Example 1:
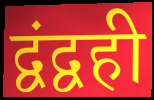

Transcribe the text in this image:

द्वंद्वही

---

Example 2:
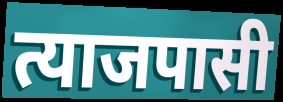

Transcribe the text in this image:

त्याजपासी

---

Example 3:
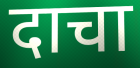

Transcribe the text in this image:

दाचा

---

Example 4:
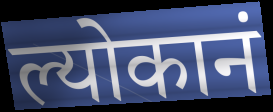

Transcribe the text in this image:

ल्योकानं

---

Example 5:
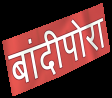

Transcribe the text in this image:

बांदीपोरा